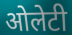
ओलेटी